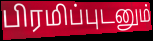
பிரமிப்புடனும்